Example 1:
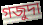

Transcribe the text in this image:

গজুদা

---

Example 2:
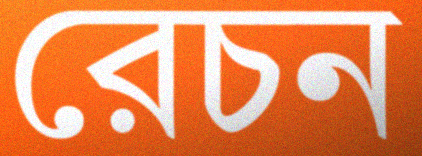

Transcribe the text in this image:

রেচন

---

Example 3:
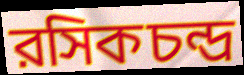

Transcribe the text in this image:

রসিকচন্দ্র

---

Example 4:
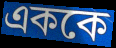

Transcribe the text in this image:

এককে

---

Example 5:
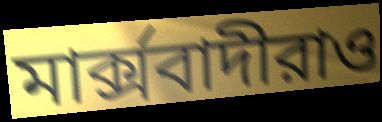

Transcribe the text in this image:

মার্ক্সবাদীরাও